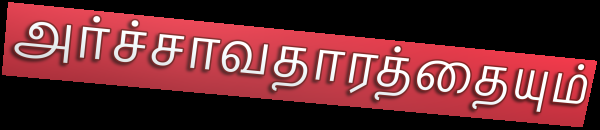
அர்ச்சாவதாரத்தையும்